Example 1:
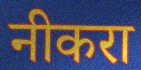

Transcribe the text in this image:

नीकरा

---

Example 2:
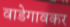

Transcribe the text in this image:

वाडेगावकर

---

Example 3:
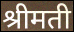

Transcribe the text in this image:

श्रीमती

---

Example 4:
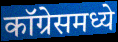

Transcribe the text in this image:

कॉग्रेसमध्ये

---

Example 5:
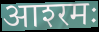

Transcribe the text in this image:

आश्रमः